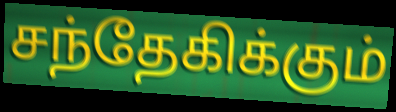
சந்தேகிக்கும்